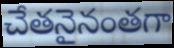
చేతనైనంతగా